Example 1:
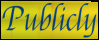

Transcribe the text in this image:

Publicly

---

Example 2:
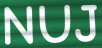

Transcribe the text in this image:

NUJ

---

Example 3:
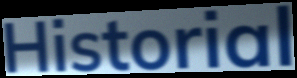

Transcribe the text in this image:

Historial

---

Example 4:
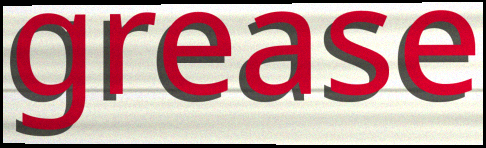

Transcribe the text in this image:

grease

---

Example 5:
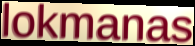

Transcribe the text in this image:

lokmanas